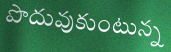
పొదువుకుంటున్న